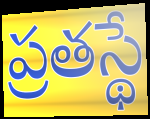
ప్రతస్థే